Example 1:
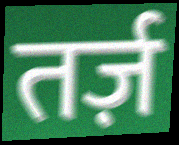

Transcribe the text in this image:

तर्ज़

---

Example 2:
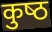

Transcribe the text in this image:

कुष्‍ठ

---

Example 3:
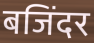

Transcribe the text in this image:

बजिंदर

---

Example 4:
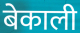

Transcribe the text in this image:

बेकाली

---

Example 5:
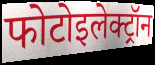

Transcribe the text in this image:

फोटोइलेक्ट्रॉन